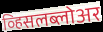
व्हिसलब्लोअर